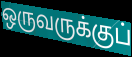
ஒருவருக்குப்